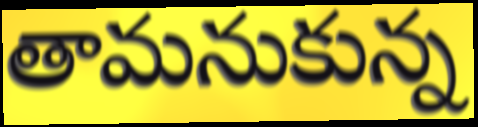
తామనుకున్న